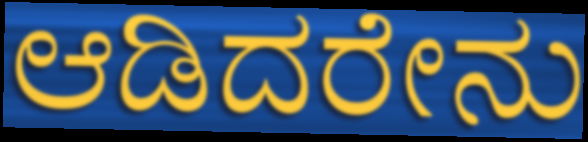
ಆಡಿದರೇನು